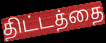
திட்டத்தை